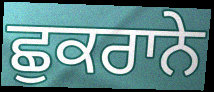
ਛੁਕਰਾਨੇ